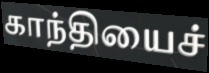
காந்தியைச்